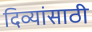
दिव्यांसाठी